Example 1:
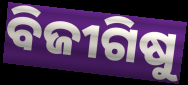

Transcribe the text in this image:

ବିଜୀଗିଷୁ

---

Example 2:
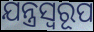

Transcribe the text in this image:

ଯନ୍ତ୍ରସ୍ୱରୂପ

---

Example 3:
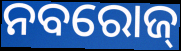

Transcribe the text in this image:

ନବରୋଜ୍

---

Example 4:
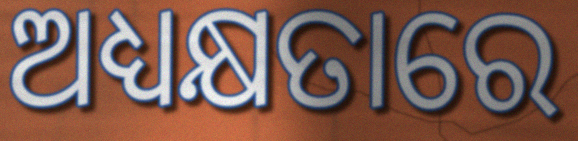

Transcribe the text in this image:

ଅଧ୍ଯକ୍ଷତାରେ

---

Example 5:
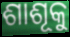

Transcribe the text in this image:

ଶାଶୂକୁ